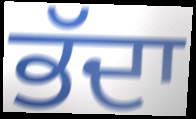
ਭੱਦਾ